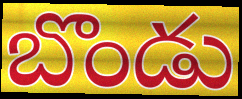
బొండు